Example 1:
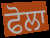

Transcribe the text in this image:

ਫੋਲਾ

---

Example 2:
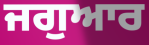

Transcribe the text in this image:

ਜਗੁਆਰ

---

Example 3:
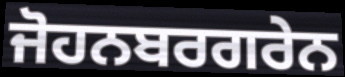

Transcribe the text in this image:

ਜੋਹਨਬਰਗਰੇਨ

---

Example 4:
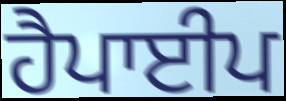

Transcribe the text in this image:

ਹੈਪਾਈਪ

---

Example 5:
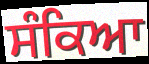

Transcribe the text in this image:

ਸੰਕਿਆ